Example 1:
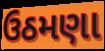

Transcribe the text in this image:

ઉઠમણા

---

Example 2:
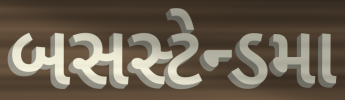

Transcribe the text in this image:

બસસ્ટેન્ડમા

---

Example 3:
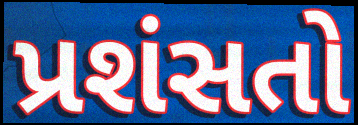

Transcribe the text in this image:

પ્રશંસતો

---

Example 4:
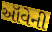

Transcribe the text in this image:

ઑવેની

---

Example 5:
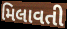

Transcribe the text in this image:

મિલાવતી